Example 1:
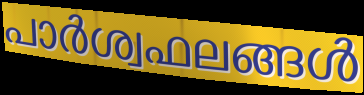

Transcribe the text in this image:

പാർശ്വഫലങ്ങൾ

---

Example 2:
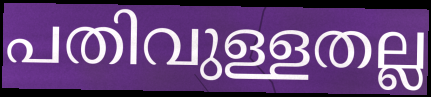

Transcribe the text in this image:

പതിവുള്ളതല്ല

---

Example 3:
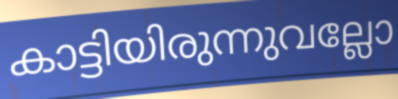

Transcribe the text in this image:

കാട്ടിയിരുന്നുവല്ലോ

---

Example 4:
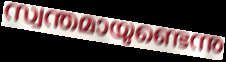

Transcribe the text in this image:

സ്വന്തമായുണ്ടെന്നു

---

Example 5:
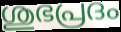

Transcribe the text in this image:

ശുഭപ്രദം